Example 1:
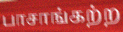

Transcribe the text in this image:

பாசாங்கற்ற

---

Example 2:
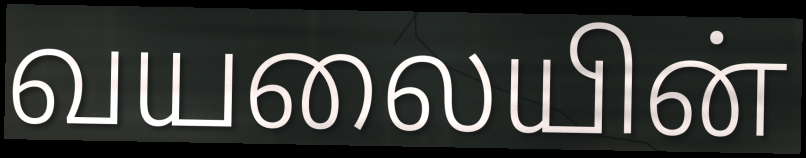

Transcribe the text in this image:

வயலையின்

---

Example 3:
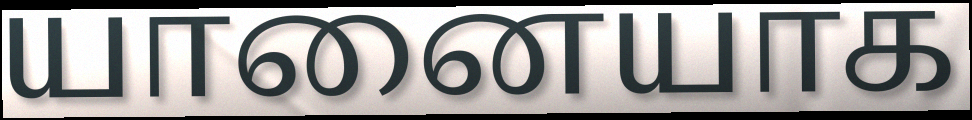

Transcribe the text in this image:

யானையாக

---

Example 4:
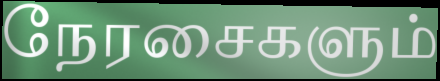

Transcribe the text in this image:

நேரசைகளும்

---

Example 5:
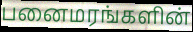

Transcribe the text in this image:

பனைமரங்களின்